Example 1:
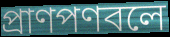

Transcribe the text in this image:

প্রাণপণবলে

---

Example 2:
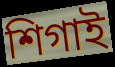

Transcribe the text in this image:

শিগাই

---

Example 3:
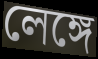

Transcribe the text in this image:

লেঙ্গে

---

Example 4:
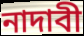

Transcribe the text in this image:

নাদাবী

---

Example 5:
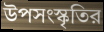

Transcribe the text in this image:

উপসংস্কৃতির